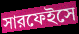
সারফেইসে